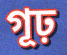
গূঢ়